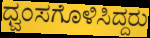
ಧ್ವಂಸಗೊಳಿಸಿದ್ದರು